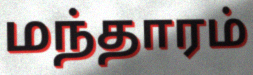
மந்தாரம்